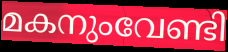
മകനുംവേണ്ടി